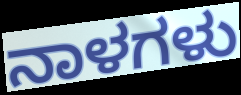
ನಾಳಗಳು